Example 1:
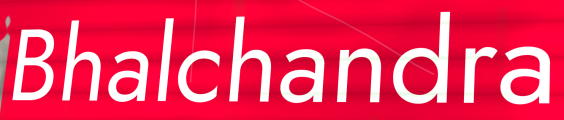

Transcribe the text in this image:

Bhalchandra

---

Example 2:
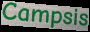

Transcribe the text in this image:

Campsis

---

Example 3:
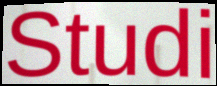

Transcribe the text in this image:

Studi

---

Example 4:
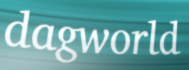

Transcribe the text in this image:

dagworld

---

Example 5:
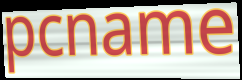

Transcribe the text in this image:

pcname